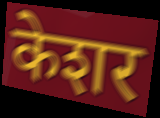
केशर